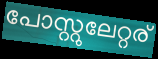
പോസ്റ്റുലേറ്റര്